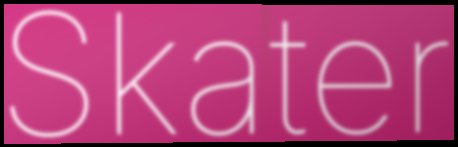
Skater